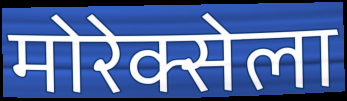
मोरेक्सेला